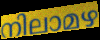
നിലാമഴ